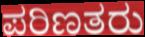
ಪರಿಣತರು